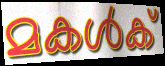
മകൾക്